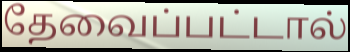
தேவைப்பட்டால்